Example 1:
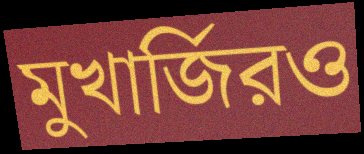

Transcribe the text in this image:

মুখার্জিরও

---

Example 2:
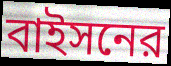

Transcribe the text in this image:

বাইসনের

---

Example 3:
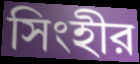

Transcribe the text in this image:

সিংহীর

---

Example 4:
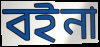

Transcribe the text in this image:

বইনা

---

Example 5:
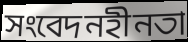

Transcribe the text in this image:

সংবেদনহীনতা